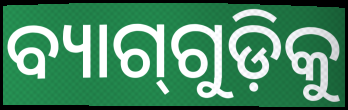
ବ୍ୟାଗ୍‍ଗୁଡ଼ିକୁ